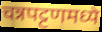
चन्नपट्टणमध्ये